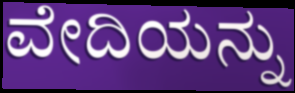
ವೇದಿಯನ್ನು